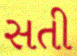
સતી